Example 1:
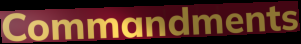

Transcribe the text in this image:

Commandments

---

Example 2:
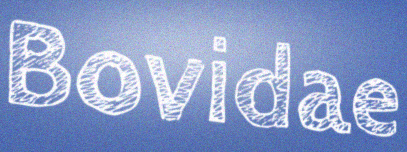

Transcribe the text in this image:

Bovidae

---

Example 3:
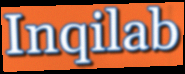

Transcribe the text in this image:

Inqilab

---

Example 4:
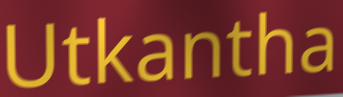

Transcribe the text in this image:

Utkantha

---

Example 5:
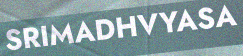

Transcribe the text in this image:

SRIMADHVYASA